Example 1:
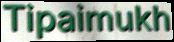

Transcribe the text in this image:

Tipaimukh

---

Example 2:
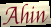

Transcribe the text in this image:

Ahin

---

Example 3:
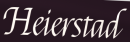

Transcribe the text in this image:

Heierstad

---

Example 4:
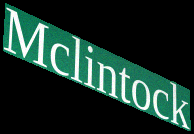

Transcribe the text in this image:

Mclintock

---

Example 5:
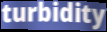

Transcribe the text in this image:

turbidity